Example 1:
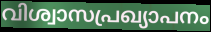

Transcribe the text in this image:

വിശ്വാസപ്രഖ്യാപനം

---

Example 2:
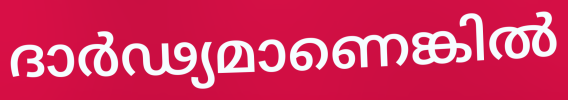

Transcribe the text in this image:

ദാർഢ്യമാണെങ്കിൽ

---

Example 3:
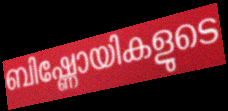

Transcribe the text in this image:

ബിഷ്ണോയികളുടെ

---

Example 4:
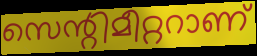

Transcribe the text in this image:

സെന്റിമീറ്ററാണ്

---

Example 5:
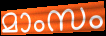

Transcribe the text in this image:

മാംസം